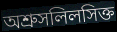
অশ্রুসলিলসিক্ত